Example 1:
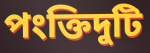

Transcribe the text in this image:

পংক্তিদুটি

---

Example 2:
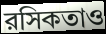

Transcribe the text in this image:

রসিকতাও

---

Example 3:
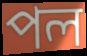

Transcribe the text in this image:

পল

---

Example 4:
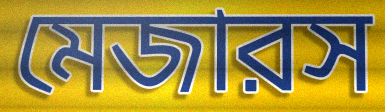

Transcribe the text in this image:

মেজারস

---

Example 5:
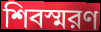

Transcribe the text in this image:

শিবস্মরণ